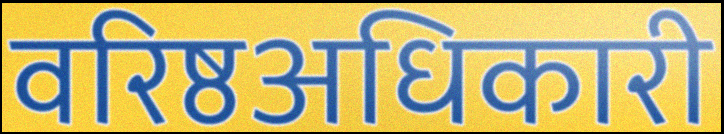
वरिष्ठअधिकारी